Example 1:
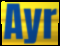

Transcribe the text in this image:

Ayr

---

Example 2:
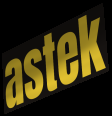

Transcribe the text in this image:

astek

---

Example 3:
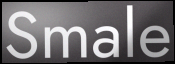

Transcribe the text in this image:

Smale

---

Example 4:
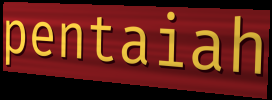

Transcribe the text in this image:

pentaiah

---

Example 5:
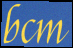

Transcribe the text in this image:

bcm